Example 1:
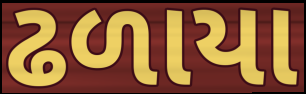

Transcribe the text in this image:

ઢળાયા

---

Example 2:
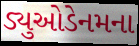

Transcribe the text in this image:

ડ્યુઓડેનમના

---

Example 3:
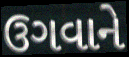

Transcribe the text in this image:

ઉગવાને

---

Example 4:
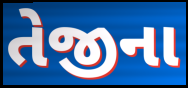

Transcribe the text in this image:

તેજીના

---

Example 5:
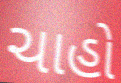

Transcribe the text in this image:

ચાહો